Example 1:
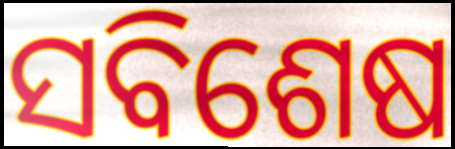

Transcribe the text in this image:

ସବିଶେଷ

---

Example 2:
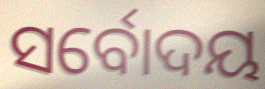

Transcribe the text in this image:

ସର୍ବୋଦୟ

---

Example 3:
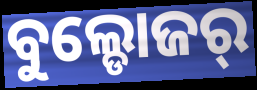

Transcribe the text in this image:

ବୁଲ୍ଡୋଜର୍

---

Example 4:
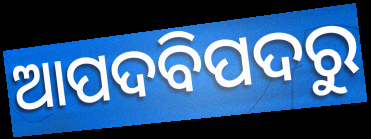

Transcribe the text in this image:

ଆପଦବିପଦରୁ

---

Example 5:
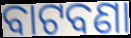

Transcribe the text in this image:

ବାଟବଣା